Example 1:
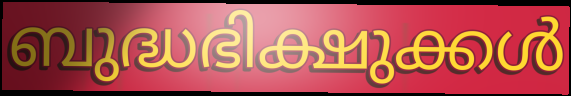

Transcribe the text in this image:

ബുദ്ധഭിക്ഷുക്കൾ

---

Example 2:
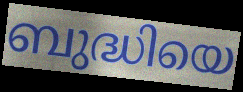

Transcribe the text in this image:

ബുദ്ധിയെ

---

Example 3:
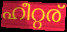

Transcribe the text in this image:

ഹീറ്റര്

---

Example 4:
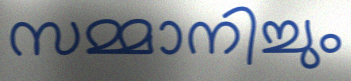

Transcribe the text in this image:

സമ്മാനിച്ചും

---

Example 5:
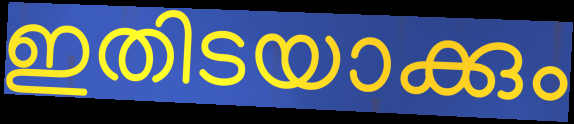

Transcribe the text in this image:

ഇതിടയാക്കും